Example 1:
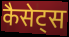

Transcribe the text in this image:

कैसेट्स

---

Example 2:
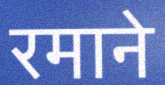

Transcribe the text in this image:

रमाने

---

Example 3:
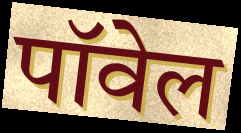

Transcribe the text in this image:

पॉवेल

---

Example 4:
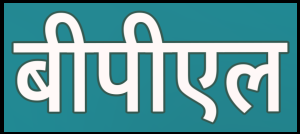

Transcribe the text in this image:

बीपीएल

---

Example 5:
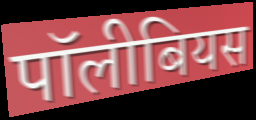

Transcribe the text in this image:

पॉलीबियस